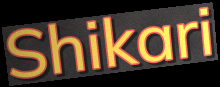
Shikari